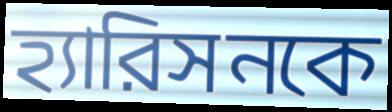
হ্যারিসনকে